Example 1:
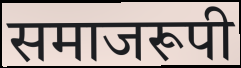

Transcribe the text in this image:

समाजरूपी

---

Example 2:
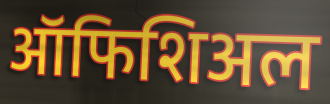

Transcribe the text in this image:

ऑफिशिअल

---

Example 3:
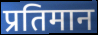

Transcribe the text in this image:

प्रतिमान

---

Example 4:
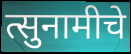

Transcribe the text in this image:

त्सुनामीचे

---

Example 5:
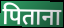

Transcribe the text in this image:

पिताना